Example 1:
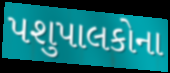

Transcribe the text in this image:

પશુપાલકોના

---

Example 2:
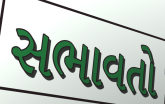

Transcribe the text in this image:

સભાવતો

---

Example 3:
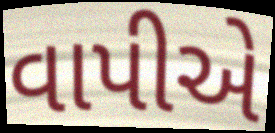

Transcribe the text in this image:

વાપીએ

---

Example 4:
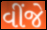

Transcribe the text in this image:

વીંજે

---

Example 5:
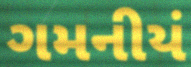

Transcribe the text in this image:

ગમનીયં